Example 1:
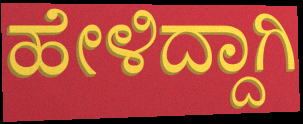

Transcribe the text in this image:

ಹೇಳಿದ್ದಾಗಿ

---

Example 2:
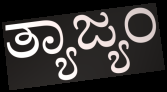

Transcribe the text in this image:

ತ್ಯಾಜ್ಯಂ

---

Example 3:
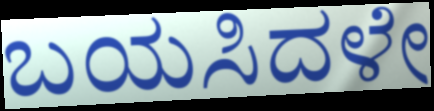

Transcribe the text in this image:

ಬಯಸಿದಳೇ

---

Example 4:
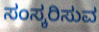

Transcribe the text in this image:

ಸಂಸ್ಕರಿಸುವ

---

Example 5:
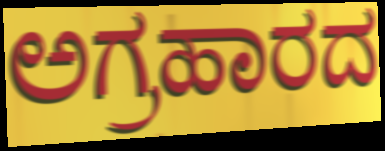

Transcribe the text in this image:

ಅಗ್ರಹಾರದ